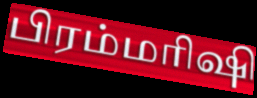
பிரம்மரிஷி